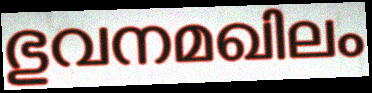
ഭുവനമഖിലം